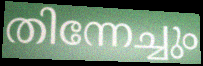
തിന്നേച്ചും